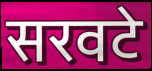
सरवटे